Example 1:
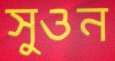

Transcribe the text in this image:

সুওন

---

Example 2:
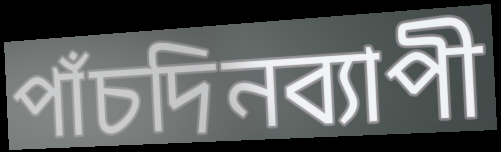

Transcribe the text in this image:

পাঁচদিনব্যাপী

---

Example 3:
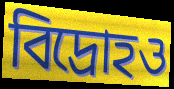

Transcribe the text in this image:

বিদ্রোহও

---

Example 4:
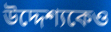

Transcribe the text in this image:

উদ্দেশ্যকেও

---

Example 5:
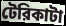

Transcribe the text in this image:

টেরিকাটা